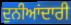
ਦੁਨੀਆਂਦਾਰੀ